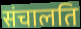
संचालति